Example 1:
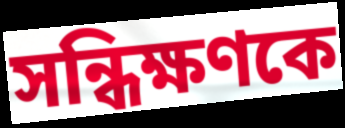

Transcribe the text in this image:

সন্ধিক্ষণকে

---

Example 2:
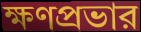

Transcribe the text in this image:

ক্ষণপ্রভার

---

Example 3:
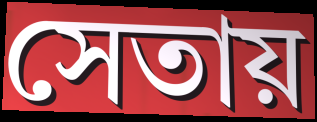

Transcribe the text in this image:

সেতায়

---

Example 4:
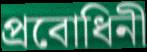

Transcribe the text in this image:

প্রবোধিনী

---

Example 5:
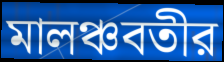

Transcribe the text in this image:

মালঞ্চবতীর